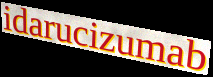
idarucizumab